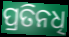
ପ୍ରତିନଧି